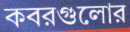
কবরগুলোর